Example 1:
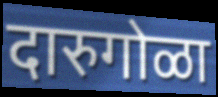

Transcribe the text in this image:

दारुगोळा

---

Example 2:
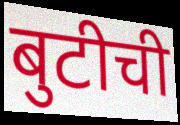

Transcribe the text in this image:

बुटीची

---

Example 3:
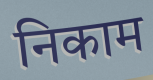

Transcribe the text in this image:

निकाम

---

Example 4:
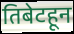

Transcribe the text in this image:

तिबेटहून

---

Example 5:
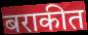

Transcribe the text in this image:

बराकीत